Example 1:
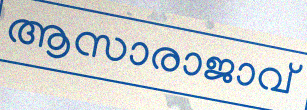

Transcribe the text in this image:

ആസാരാജാവ്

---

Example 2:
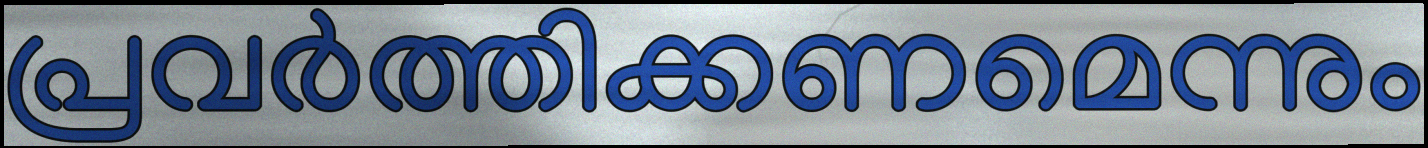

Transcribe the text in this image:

പ്രവർത്തിക്കണമെന്നും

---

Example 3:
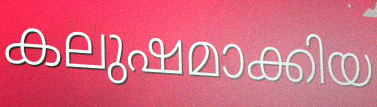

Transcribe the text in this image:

കലുഷമാക്കിയ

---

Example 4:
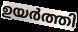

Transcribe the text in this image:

ഉയർത്തി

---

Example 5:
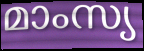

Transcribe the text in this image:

മാംസ്യ